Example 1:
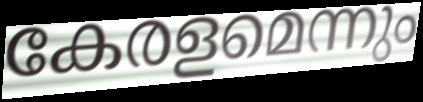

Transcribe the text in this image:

കേരളമെന്നും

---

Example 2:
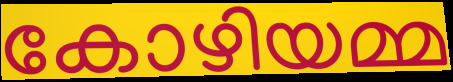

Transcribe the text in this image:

കോഴിയമ്മ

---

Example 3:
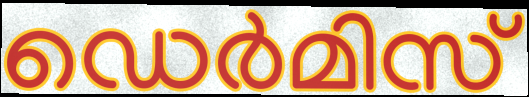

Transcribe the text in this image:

ഡെർമിസ്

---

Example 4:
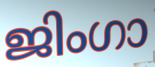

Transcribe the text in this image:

ജിംഗാ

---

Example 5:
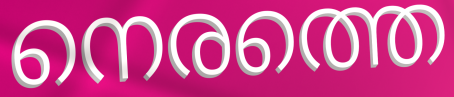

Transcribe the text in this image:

നെരത്തെ